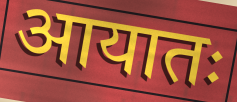
आयातः